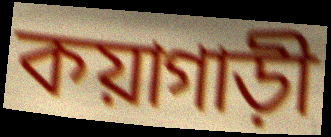
কয়াগাড়ী